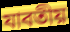
যাবতীয়